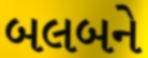
બલબને